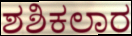
ಶಶಿಕಲಾರ